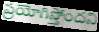
ప్రయోగిస్తోందని